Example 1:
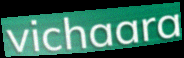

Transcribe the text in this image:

vichaara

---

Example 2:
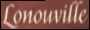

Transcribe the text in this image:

Lonouville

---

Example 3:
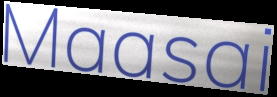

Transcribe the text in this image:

Maasai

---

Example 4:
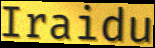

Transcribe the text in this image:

Iraidu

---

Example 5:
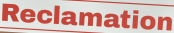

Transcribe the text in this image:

Reclamation